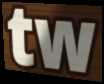
tw